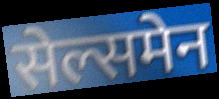
सेल्समेन